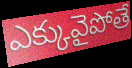
ఎక్కువైపోతే